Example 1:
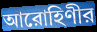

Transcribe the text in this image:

আরোহিণীর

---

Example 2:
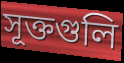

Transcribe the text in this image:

সূক্তগুলি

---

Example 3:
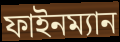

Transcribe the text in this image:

ফাইনম্যান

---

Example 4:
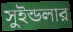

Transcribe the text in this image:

সুইন্ডলার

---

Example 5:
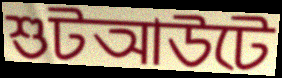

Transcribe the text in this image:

শুটআউটে